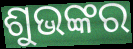
ଶୁଭଙ୍କର